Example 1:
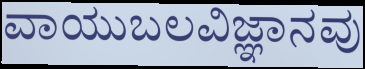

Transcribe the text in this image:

ವಾಯುಬಲವಿಜ್ಞಾನವು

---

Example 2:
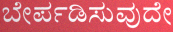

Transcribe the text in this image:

ಬೇರ್ಪಡಿಸುವುದೇ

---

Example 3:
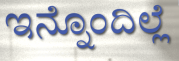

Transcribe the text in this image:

ಇನ್ನೊಂದಿಲ್ಲೆ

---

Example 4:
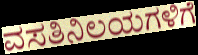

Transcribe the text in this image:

ವಸತಿನಿಲಯಗಳಿಗೆ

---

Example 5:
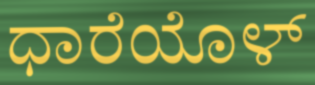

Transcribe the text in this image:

ಧಾರೆಯೊಳ್